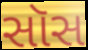
સૉસ